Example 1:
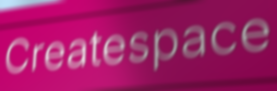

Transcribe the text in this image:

Createspace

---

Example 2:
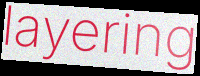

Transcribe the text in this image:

layering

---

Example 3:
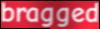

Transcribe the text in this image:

bragged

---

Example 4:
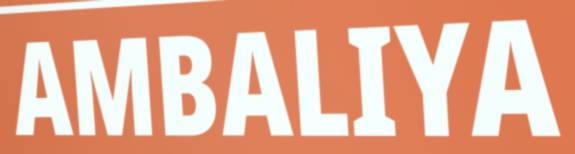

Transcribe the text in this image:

AMBALIYA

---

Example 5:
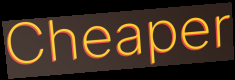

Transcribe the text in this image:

Cheaper